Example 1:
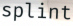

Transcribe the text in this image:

splint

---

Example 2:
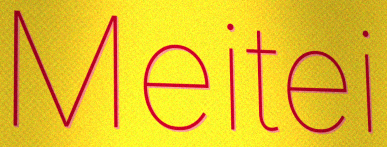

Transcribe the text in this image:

Meitei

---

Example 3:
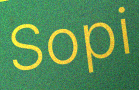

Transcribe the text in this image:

Sopi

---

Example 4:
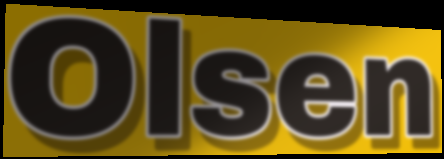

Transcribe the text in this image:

Olsen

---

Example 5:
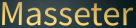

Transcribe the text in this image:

Masseter